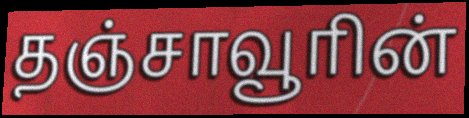
தஞ்சாவூரின்